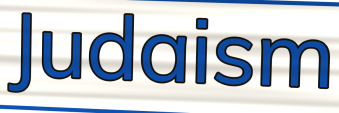
Judaism